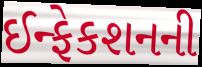
ઈન્ફેકશનની